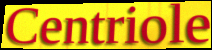
Centriole